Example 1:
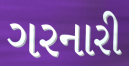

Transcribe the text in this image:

ગરનારી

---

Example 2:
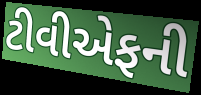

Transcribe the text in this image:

ટીવીએફની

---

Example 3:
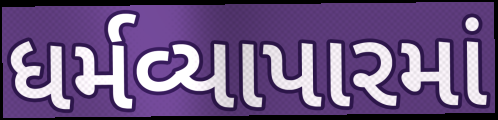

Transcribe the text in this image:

ધર્મવ્યાપારમાં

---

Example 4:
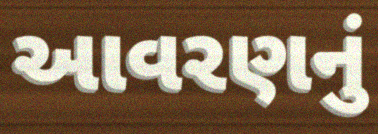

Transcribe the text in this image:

આવરણનું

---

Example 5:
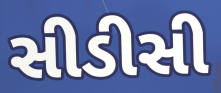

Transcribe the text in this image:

સીડીસી